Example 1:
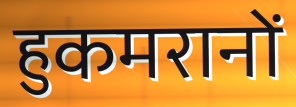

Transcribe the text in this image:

हुकमरानों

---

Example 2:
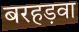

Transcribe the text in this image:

बरहड़वा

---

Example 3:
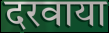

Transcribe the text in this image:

दरवाया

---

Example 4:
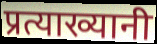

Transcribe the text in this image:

प्रत्याख्यानी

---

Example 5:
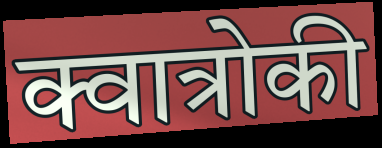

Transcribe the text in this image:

क्वात्रोकी